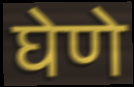
घेणे